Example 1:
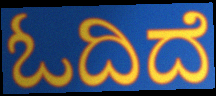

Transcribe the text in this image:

ಓದಿದೆ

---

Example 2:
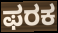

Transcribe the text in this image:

ಫರಕ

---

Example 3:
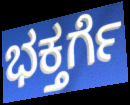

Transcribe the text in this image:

ಭಕ್ತರ್ಗೆ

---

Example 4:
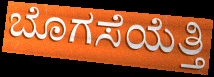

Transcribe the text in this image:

ಬೊಗಸೆಯೆತ್ತಿ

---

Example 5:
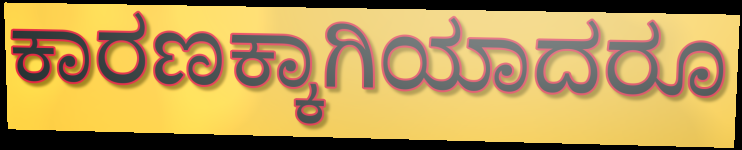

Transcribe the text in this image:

ಕಾರಣಕ್ಕಾಗಿಯಾದರೂ